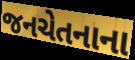
જનચેતનાના